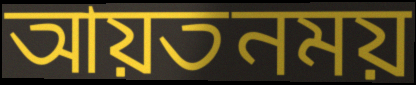
আয়তনময়